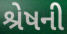
શ્રેષની